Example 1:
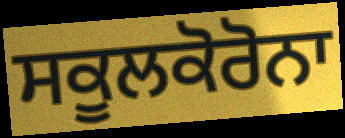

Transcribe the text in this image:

ਸਕੂਲਕੋਰੋਨਾ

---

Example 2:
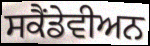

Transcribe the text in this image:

ਸਕੈਂਡੇਵੀਅਨ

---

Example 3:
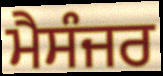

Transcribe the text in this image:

ਮੈਸੰਜਰ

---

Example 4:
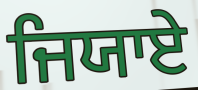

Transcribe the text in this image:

ਜਿਯਾਏ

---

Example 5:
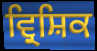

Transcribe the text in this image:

ਵ੍ਰਿਸ਼ਿਕ